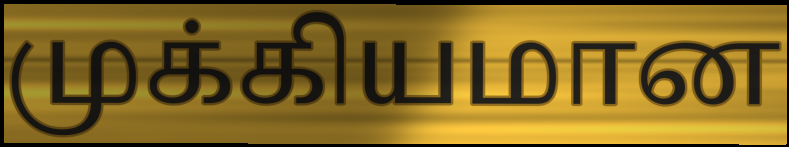
முக்கியமான